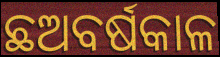
ଛଅବର୍ଷକାଳ